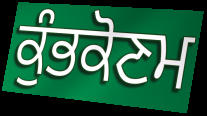
ਕੁੰਭਕੋਣਮ